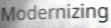
Modernizing